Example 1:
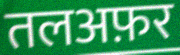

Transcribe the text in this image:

तलअफ़र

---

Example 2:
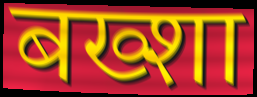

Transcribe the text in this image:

बख्शा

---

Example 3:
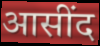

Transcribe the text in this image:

आसींद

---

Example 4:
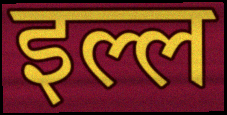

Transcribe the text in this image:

इल्ल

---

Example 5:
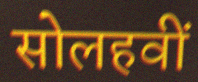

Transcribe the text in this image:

सोलहवीं